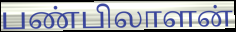
பண்பிலாளன்